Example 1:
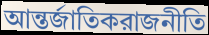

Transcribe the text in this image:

আন্তর্জাতিকরাজনীতি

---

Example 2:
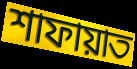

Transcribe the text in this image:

শাফায়াত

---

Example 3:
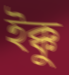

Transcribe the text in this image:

ইক্কু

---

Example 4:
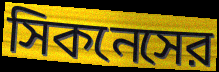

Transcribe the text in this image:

সিকনেসের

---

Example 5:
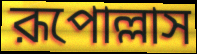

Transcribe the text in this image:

রূপোল্লাস